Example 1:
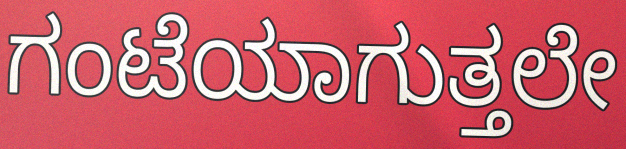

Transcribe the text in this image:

ಗಂಟೆಯಾಗುತ್ತಲೇ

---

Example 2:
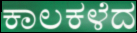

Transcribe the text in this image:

ಕಾಲಕಳೆದ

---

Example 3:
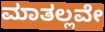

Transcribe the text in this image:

ಮಾತಲ್ಲವೇ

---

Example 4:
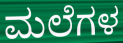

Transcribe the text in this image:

ಮಲೆಗಳ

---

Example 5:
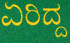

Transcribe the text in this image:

ಏರಿದ್ದ